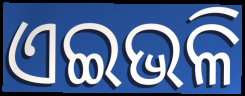
ଏଇଭଳି